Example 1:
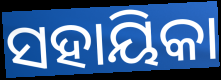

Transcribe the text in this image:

ସହାୟିକା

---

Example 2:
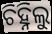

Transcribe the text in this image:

ଚିହ୍ନିଲୁ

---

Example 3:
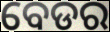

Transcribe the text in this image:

ବେଡର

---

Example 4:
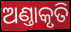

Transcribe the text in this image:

ଅଣ୍ତାକୃତି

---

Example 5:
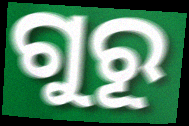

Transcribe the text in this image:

ଗୁରୂ